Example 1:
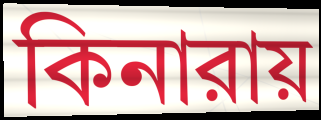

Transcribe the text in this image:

কিনারায়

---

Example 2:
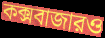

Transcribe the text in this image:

কক্সবাজারও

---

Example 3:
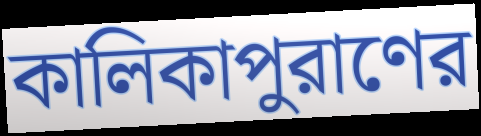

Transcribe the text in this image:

কালিকাপুরাণের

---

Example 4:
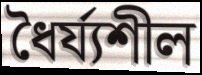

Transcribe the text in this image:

ধৈর্য্যশীল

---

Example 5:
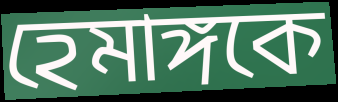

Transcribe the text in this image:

হেমাঙ্গকে